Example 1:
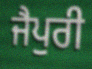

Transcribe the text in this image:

ਜੈਪੁਰੀ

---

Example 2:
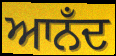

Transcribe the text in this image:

ਆਨਁਦ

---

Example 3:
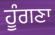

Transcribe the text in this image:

ਹੂੰਗਣਾ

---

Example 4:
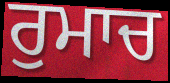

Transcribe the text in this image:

ਰੁਮਾਚ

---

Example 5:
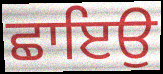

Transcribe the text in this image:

ਛਾਇਉ